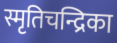
स्मृतिचन्द्रिका